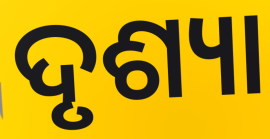
ଦୃଶ୍ୟା